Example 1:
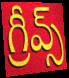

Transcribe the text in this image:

గ్రీవ్స్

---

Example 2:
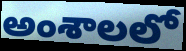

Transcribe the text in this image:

అంశాలలో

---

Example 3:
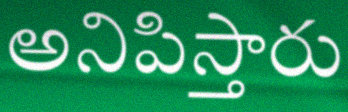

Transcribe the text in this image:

అనిపిస్తారు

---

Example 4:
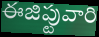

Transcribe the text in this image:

ఈజిప్టువారి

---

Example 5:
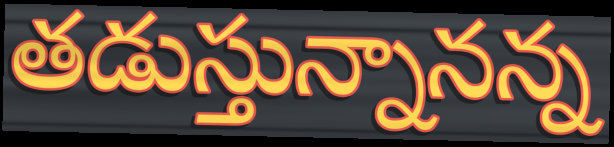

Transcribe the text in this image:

తడుస్తున్నానన్న